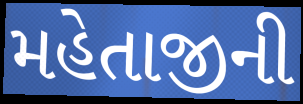
મહેતાજીની